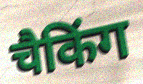
चैकिंग